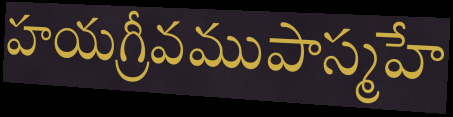
హయగ్రీవముపాస్మహే